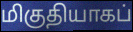
மிகுதியாகப்